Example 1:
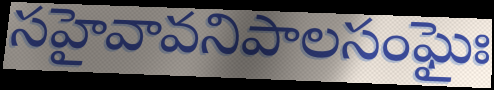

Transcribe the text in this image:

సహైవావనిపాలసంఘైః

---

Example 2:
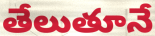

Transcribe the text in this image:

తేలుతూనే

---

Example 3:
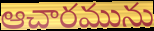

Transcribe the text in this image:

ఆచారమును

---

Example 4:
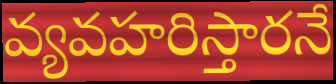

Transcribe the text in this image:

వ్యవహరిస్తారనే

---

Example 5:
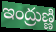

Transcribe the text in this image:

ఇంద్రుణ్ణి